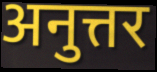
अनुत्तर